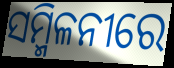
ସମ୍ମିଳନୀରେ